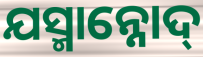
ଯସ୍ମାନ୍ନୋଦ୍